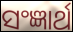
ସଂଜ୍ଞାର୍ଥ